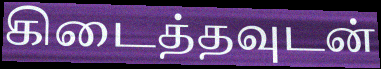
கிடைத்தவுடன்